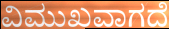
ವಿಮುಖವಾಗದೆ